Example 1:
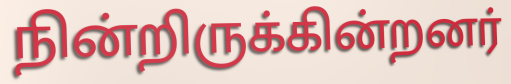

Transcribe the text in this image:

நின்றிருக்கின்றனர்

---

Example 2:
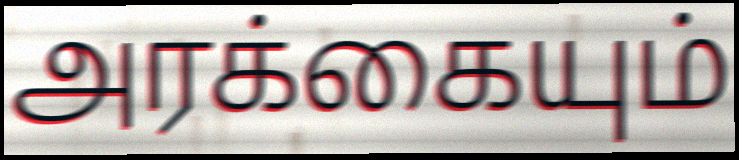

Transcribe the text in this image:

அரக்கையும்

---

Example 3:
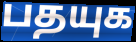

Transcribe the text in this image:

பதயுக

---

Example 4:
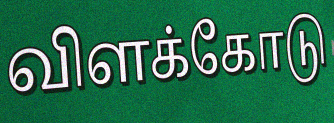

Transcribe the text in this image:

விளக்கோடு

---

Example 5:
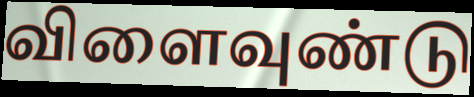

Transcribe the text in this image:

விளைவுண்டு